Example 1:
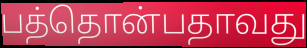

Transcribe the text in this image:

பத்தொன்பதாவது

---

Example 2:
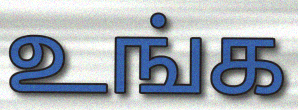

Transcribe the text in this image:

உங்க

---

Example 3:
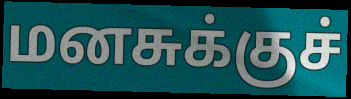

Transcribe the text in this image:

மனசுக்குச்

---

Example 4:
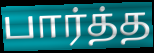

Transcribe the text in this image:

பார்த்த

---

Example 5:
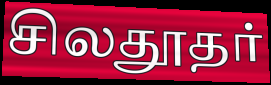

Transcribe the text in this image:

சிலதூதர்